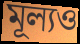
মূল্যও